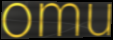
omu